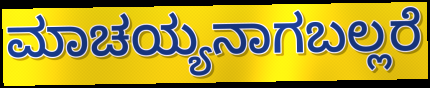
ಮಾಚಯ್ಯನಾಗಬಲ್ಲರೆ